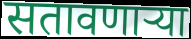
सतावणार्‍या